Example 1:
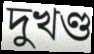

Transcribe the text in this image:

দুখণ্ড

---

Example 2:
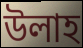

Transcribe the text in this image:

উলাহ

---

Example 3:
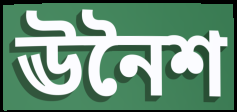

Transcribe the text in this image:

ঊনৈশ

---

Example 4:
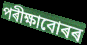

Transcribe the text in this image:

পৰীক্ষাবোৰৰ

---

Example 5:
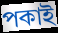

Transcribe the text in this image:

পকাই